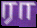
ரா